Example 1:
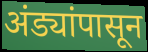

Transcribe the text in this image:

अंड्यांपासून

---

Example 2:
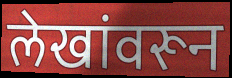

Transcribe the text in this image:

लेखांवरून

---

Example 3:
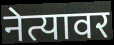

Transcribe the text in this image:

नेत्यावर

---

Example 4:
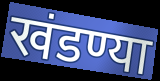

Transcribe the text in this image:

खंडण्या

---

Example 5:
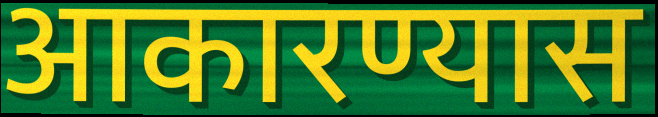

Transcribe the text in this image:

आकारण्यास